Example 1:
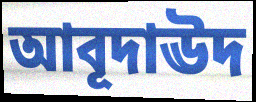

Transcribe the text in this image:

আবূদাঊদ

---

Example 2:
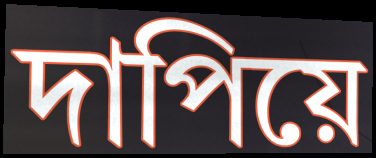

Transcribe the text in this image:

দাপিয়ে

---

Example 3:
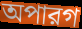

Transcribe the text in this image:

অপারগ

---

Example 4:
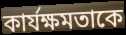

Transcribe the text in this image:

কার্যক্ষমতাকে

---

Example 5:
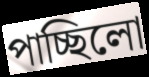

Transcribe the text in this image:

পাচ্ছিলো